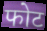
फोट